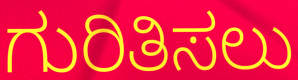
ಗುರಿತಿಸಲು